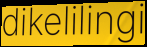
dikelilingi